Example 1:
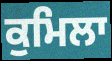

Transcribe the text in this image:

ਕੁਮਿਲਾ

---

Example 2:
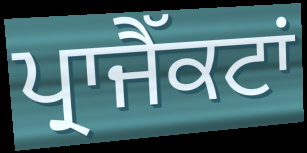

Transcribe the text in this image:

ਪ੍ਰਾਜੈੱਕਟਾਂ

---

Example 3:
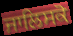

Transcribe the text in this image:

ਜਾਲਿਸਕੋ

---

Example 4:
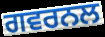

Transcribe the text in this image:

ਗਵਰਨਲ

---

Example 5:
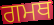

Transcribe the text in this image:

ਗਮਥ